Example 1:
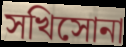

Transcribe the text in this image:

সখিসোনা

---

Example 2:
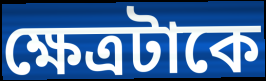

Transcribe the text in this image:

ক্ষেত্রটাকে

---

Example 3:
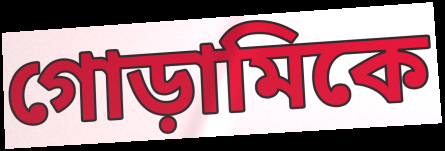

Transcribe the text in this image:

গোড়ামিকে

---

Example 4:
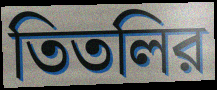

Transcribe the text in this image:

তিতলির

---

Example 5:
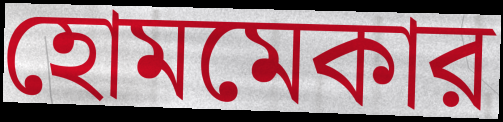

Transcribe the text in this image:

হোমমেকার